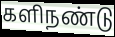
களிநண்டு